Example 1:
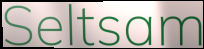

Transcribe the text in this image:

Seltsam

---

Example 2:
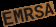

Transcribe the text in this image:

EMRSA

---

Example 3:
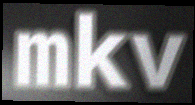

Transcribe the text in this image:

mkv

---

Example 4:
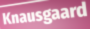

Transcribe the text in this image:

Knausgaard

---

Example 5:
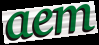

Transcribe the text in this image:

aem